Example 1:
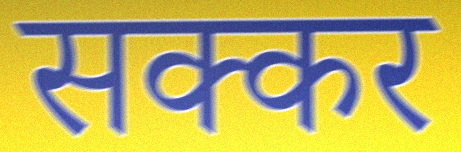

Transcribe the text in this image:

सक्कर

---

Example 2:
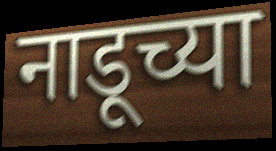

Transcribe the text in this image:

नाडूच्या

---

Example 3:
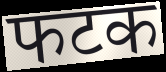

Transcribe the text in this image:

फटक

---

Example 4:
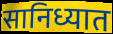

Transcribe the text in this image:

सानिध्यात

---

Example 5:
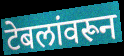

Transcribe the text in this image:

टेबलांवरून